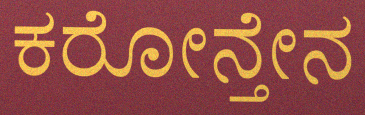
ಕರೋನ್ತೇನ